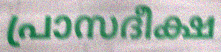
പ്രാസദീക്ഷ